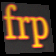
frp